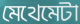
মেথেমেটা